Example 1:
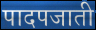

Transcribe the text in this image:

पादपजाती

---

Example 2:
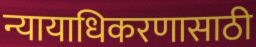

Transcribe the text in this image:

न्यायाधिकरणासाठी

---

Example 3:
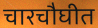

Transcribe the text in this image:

चारचौघीत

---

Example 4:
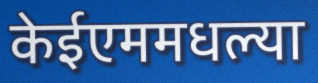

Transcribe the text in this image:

केईएममधल्या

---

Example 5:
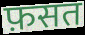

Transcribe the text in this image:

फ़सत